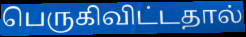
பெருகிவிட்டதால்